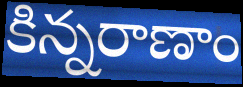
కిన్నరాణాం